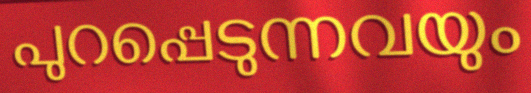
പുറപ്പെടുന്നവയും